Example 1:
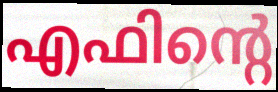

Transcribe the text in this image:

എഫിന്റെ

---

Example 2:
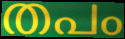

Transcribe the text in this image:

തപം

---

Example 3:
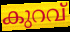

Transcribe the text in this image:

കുറവ്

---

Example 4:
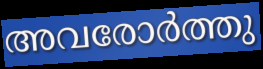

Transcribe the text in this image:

അവരോർത്തു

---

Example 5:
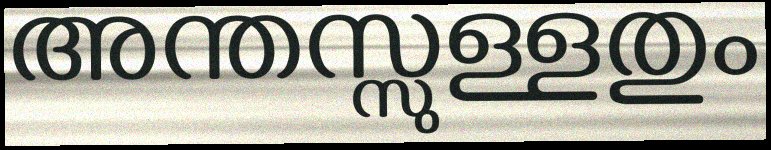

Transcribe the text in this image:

അന്തസ്സുള്ളതും